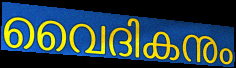
വൈദികനും